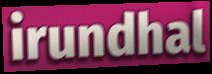
irundhal